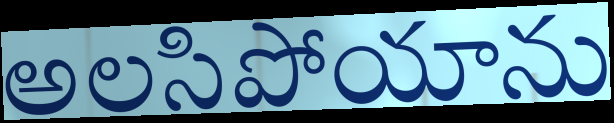
అలసిపోయాను